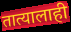
तात्यालाही